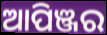
ଆପିଞ୍ଜର